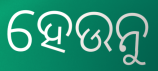
ହେଉନୁ